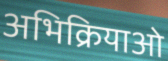
अभिक्रियाओ